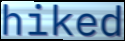
hiked